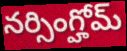
నర్సింగ్హోమ్